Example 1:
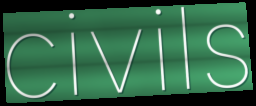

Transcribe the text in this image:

civils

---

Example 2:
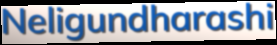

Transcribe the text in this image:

Neligundharashi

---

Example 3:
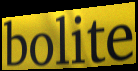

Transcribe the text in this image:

bolite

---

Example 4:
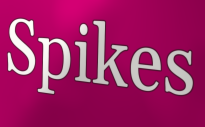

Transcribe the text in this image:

Spikes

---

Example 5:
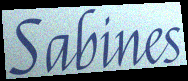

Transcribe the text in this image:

Sabines